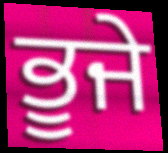
ਭੂਜੇ